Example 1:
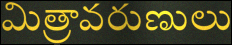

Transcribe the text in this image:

మిత్రావరుణులు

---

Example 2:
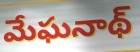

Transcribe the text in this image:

మేఘనాథ్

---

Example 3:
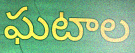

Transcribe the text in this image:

ఘటాల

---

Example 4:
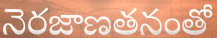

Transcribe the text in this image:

నెరజాణతనంతో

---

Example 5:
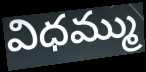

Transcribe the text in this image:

విధమ్ము